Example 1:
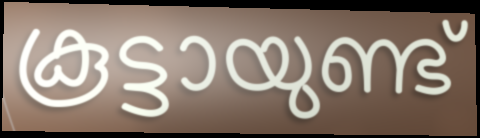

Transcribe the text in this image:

കൂട്ടായുണ്ട്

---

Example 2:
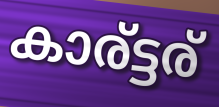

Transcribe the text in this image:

കാര്ട്ടര്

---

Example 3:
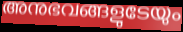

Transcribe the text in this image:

അനുഭവങ്ങളുടേയും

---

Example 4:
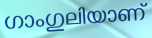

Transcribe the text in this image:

ഗാംഗുലിയാണ്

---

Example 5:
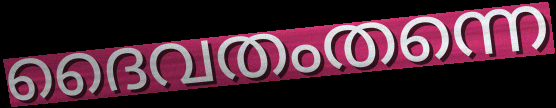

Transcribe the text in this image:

ദൈവതംതന്നെ